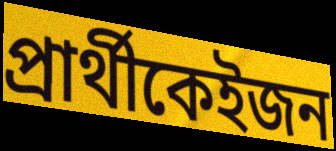
প্ৰাৰ্থীকেইজন